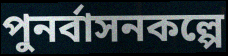
পুনর্বাসনকল্পে